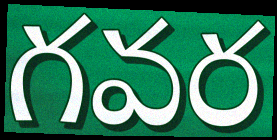
గవర